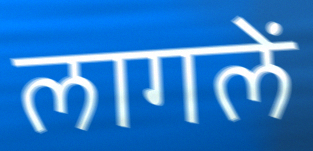
लागलें